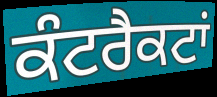
ਕੰਟਰੈਕਟਾਂ